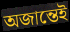
অজান্তেই